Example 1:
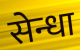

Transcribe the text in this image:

सेन्धा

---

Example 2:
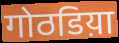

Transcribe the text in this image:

गोठडिय़ा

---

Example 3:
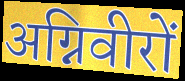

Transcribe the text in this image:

अग्निवीरों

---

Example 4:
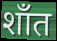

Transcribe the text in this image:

शाँत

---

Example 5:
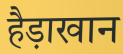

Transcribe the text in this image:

हैड़ाखान